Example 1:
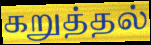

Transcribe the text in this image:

கறுத்தல்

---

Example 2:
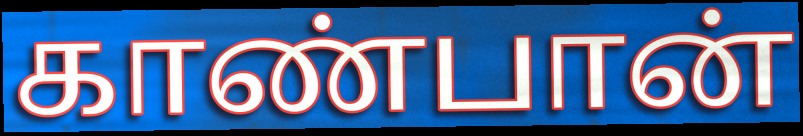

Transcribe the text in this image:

காண்பான்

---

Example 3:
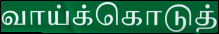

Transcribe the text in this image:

வாய்க்கொடுத்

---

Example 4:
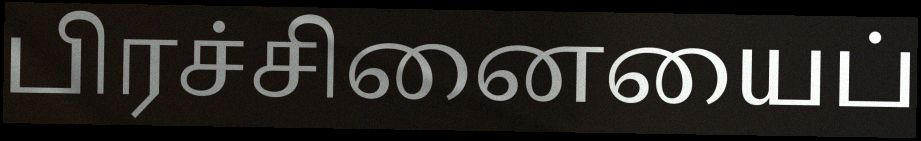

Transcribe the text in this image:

பிரச்சினையைப்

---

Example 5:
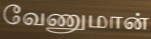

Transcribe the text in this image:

வேணுமான்